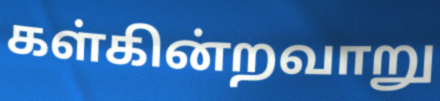
கள்கின்றவாறு